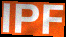
IPF